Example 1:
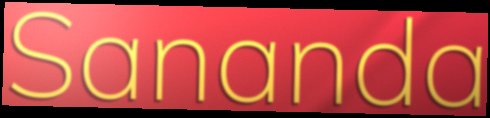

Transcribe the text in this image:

Sananda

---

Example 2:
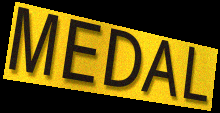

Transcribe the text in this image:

MEDAL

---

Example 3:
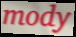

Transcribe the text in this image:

mody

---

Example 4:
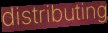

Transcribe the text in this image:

distributing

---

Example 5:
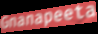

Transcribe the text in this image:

Gnanapeeta